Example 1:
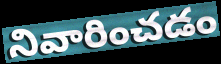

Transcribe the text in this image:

నివారించడం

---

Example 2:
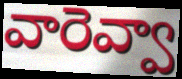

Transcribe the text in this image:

వారెవ్వా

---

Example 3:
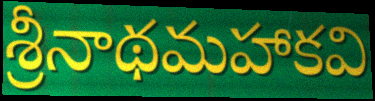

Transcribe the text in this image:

శ్రీనాథమహాకవి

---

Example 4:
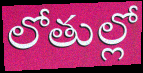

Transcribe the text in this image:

లోతుల్లో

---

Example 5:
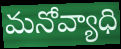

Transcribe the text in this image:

మనోవ్యాధి